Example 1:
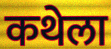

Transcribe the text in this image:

कथेला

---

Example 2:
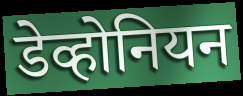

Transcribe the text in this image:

डेव्होनियन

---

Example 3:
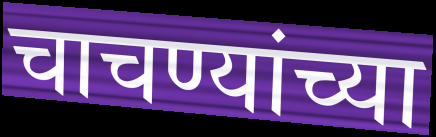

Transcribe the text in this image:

चाचण्यांच्या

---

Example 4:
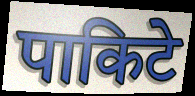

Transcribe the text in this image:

पाकिटे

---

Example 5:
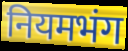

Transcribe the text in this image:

नियमभंग